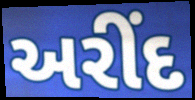
અરીંદ